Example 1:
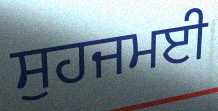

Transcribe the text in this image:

ਸੁਹਜਮਈ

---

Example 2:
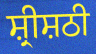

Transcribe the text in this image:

ਸ਼੍ਰੀਸ਼ਠੀ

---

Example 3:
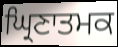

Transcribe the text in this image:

ਘ੍ਰਿਣਾਤਮਕ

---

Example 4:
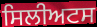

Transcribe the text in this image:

ਸਿਲੀਅਟਸ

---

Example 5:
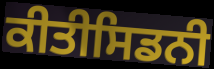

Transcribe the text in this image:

ਕੀਤੀਸਿਡਨੀ